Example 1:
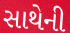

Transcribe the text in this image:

સાથેની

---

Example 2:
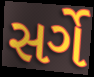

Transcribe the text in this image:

સર્ગે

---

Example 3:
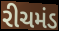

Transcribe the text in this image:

રીચમંડ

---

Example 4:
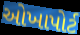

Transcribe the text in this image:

ઓખાપોર્ટ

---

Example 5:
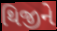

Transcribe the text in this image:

થિજીને